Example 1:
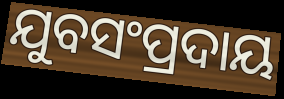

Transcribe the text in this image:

ଯୁବସଂପ୍ରଦାୟ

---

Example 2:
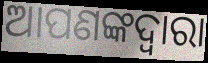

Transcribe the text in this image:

ଆପଣଙ୍କଦ୍ଵାରା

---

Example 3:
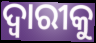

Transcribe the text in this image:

ଦ୍ଵାରୀକୁ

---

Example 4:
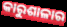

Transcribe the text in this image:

କାରୁଶାଳାର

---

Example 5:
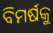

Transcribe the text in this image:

ବିମର୍ଷକୁ